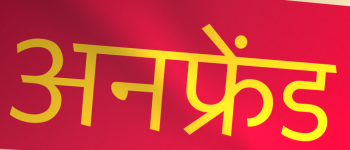
अनफ्रेंड